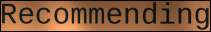
Recommending